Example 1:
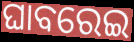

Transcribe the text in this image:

ଘାବରେଇ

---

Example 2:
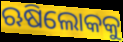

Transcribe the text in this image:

ଋଷିଲୋକକୁ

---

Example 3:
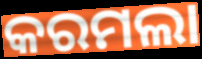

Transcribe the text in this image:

କରମଲା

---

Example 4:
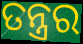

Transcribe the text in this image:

ତନ୍ତ୍ରର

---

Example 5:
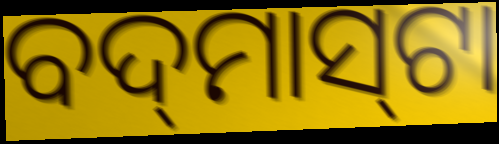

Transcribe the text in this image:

ବଦ୍‌ମାସ୍‌ଟା